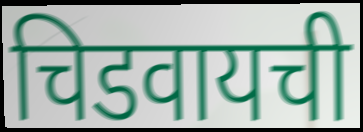
चिडवायची